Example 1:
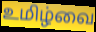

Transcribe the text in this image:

உமிழ்வை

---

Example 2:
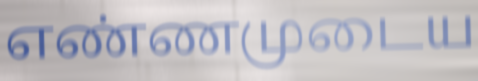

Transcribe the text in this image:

எண்ணமுடைய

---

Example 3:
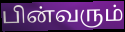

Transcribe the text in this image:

பின்வரும்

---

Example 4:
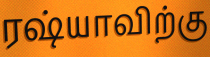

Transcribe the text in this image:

ரஷ்யாவிற்கு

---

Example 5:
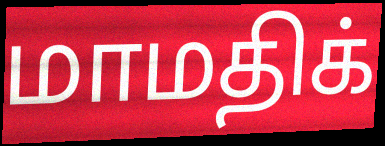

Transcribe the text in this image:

மாமதிக்